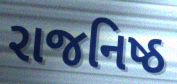
રાજનિષ્ઠ